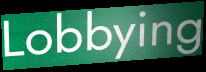
Lobbying